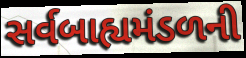
સર્વબાહ્યમંડળની